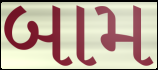
બામ